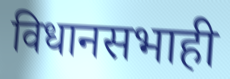
विधानसभाही